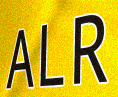
ALR